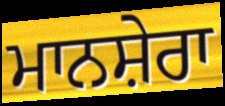
ਮਾਨਸ਼ੇਰਾ